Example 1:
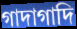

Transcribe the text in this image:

গাদাগাদি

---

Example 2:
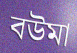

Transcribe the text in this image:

বউমা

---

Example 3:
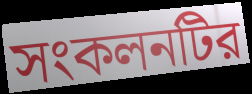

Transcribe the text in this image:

সংকলনটির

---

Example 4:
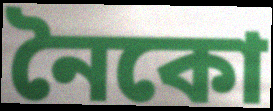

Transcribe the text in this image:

নৈকো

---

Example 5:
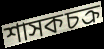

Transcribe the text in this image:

শাসকচক্র